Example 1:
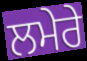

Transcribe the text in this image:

ਲਮੇਰੇ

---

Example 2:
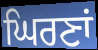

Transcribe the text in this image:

ਘਿਰਣਾਂ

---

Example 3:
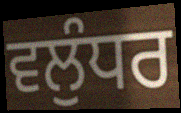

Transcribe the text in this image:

ਵਲੁੰਧਰ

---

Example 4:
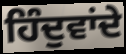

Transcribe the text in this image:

ਹਿੰਦੁਵਾਂਦੇ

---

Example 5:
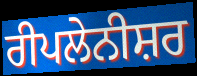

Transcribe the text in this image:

ਰੀਪਲੇਨੀਸ਼ਰ